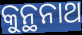
କୁନ୍ଥନାଥ